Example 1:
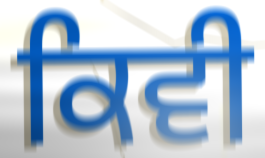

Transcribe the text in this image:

ਕਿਵੀ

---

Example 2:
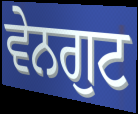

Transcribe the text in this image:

ਵੇਨਗੁਟ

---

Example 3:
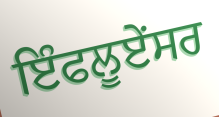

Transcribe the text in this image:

ਇੰਫਲੂਏਂਸਰ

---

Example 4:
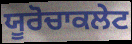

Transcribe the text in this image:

ਯੂਰੋਚਾਕਲੇਟ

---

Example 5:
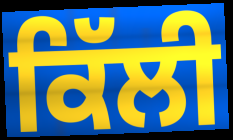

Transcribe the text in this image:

ਕਿੱਲੀ